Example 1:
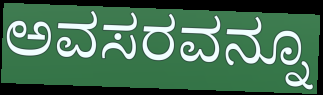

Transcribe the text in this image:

ಅವಸರವನ್ನೂ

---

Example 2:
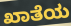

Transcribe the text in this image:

ಖಾತೆಯ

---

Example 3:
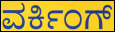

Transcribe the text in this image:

ವರ್ಕಿಂಗ್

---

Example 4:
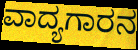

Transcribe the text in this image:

ವಾದ್ಯಗಾರನ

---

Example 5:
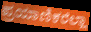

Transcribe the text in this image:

ಪ್ರಯಾಣಿಕರೆಲ್ಲಾ